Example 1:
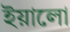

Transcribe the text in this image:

ইয়ালো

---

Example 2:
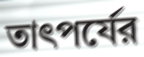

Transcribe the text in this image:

তাৎপর্যের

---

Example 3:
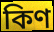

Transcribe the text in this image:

কিণ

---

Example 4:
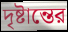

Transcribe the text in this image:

দৃষ্টান্তের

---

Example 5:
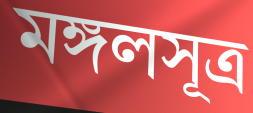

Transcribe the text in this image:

মঙ্গলসূত্র